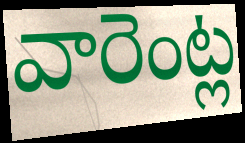
వారెంట్ల